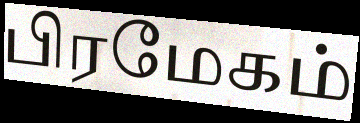
பிரமேகம்